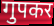
गुपकर